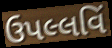
ઉપલ્લવિં